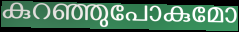
കുറഞ്ഞുപോകുമോ